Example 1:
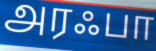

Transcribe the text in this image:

அரஃபா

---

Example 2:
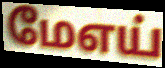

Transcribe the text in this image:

மேஎய்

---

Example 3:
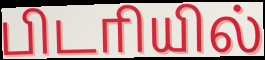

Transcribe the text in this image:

பிடரியில்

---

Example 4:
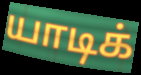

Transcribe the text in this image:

யாடிக்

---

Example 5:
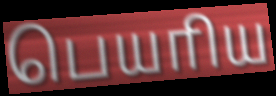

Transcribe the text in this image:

பெயரிய